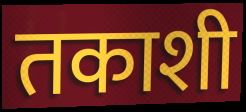
तकाशी